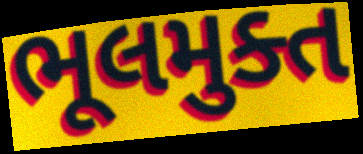
ભૂલમુક્ત